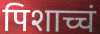
पिशाच्चं